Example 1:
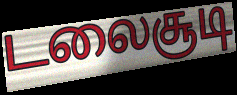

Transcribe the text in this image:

டலைசூடி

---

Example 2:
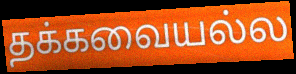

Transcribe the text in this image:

தக்கவையல்ல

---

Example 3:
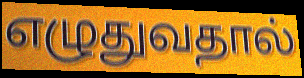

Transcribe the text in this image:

எழுதுவதால்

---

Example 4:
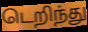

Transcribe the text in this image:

டெறிந்து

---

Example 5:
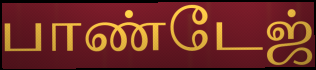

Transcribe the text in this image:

பாண்டேஜ்